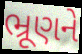
ભ્રૂણને